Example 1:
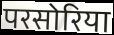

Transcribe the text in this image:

परसोरिया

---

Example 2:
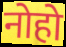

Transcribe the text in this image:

नोहो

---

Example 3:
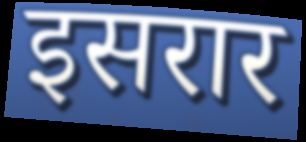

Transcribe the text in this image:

इसरार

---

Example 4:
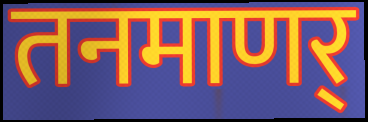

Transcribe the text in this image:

तनमाणर्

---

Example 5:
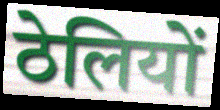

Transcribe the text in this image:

ठेलियों